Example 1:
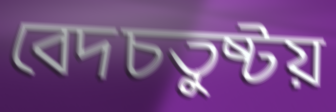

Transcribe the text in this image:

বেদচতুষ্টয়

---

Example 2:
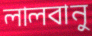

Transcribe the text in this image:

লালবানু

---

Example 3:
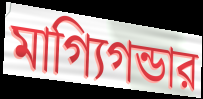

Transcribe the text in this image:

মাগ্যিগন্ডার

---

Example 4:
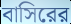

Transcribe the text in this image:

বাসিরের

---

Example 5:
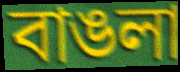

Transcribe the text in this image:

বাঙলা